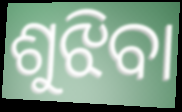
ଶୁଝିବା